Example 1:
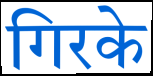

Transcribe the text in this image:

गिरके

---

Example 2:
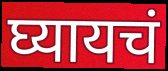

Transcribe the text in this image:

घ्यायचं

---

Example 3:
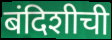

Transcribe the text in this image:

बंदिशीची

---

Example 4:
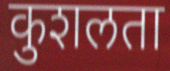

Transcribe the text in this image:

कुशलता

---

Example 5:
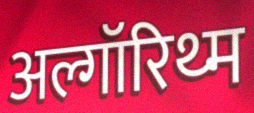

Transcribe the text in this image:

अल्गॉरिथ्म